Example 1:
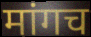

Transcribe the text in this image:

मांगच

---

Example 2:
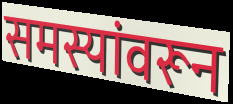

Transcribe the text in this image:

समस्यांवरून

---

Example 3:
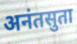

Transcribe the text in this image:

अनंतसुता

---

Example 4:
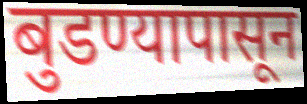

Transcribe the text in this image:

बुडण्यापासून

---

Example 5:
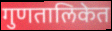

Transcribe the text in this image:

गुणतालिकेत